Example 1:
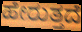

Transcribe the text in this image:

ಹೇರುತ್ತದೆ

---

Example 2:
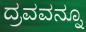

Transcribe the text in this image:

ದ್ರವವನ್ನೂ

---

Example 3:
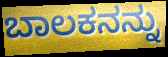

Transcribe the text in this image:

ಬಾಲಕನನ್ನು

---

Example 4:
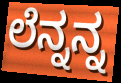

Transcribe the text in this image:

ಲೆನ್ನನ್ನ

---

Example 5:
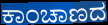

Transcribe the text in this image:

ಕಾಂಚಾಣದ